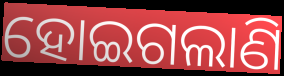
ହୋଇଗଲାଣି